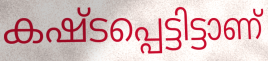
കഷ്ടപ്പെട്ടിട്ടാണ്